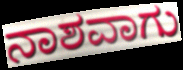
ನಾಶವಾಗು